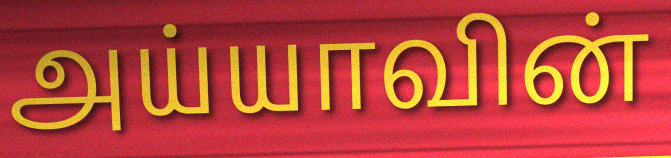
அய்யாவின்